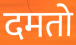
दमतो